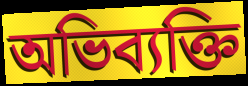
অভিব্যক্তি